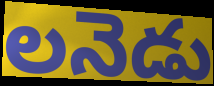
లనెడు